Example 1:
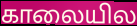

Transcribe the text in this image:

காலையில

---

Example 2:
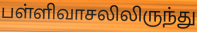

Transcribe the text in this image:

பள்ளிவாசலிலிருந்து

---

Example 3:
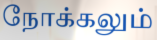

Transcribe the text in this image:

நோக்கலும்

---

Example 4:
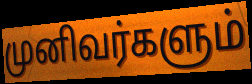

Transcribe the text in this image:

முனிவர்களும்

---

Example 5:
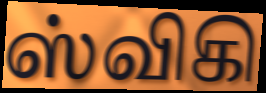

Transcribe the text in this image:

ஸ்விகி